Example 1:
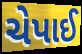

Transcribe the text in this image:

ચેપાઈ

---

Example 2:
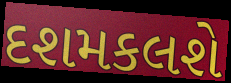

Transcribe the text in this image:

દશમકલશે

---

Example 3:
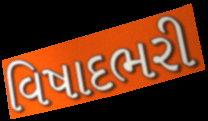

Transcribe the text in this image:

વિષાદભરી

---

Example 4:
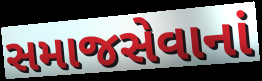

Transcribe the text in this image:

સમાજસેવાનાં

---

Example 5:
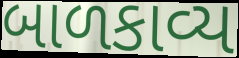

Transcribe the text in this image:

બાળકાવ્ય